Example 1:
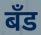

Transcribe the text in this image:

बॅंड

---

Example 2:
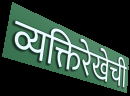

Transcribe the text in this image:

व्यक्तिरेखेची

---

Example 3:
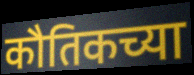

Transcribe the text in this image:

कौतिकच्या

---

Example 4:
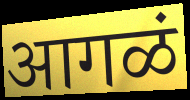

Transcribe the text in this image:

आगळं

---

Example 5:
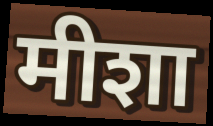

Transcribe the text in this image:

मीशा